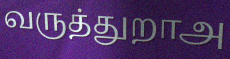
வருத்துறாஅ